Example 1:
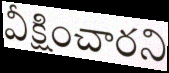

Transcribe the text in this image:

వీక్షించారని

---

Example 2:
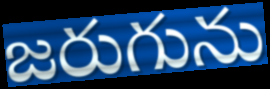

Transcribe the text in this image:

జరుగును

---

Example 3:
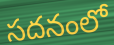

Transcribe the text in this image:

సదనంలో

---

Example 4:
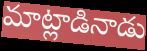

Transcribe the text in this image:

మాట్లాడినాడు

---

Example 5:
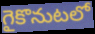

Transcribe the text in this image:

గైకొనుటలో